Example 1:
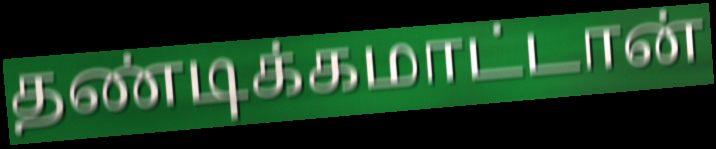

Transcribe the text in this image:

தண்டிக்கமாட்டான்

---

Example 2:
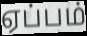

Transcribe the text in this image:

ஏப்பம்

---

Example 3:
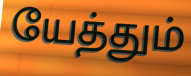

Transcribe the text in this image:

யேத்தும்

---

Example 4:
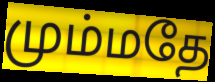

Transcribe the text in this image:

மும்மதே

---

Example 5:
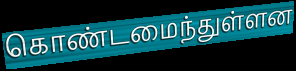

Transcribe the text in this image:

கொண்டமைந்துள்ளன